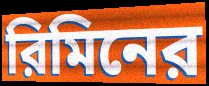
রিমিনের